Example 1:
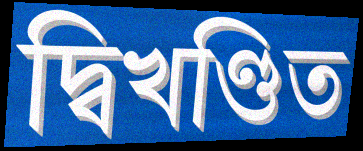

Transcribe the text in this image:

দ্বিখণ্ডিত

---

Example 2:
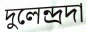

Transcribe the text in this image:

দুলেন্দ্রদা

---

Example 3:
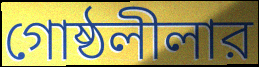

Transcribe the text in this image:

গোষ্ঠলীলার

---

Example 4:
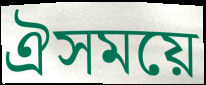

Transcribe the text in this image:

ঐসময়ে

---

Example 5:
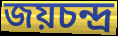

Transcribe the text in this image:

জয়চন্দ্র